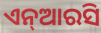
ଏନ୍ଆରସି